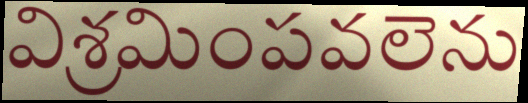
విశ్రమింపవలెను